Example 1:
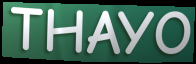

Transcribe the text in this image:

THAYO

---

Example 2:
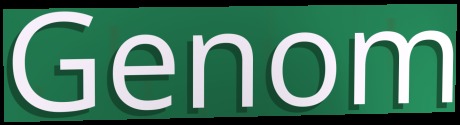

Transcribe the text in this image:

Genom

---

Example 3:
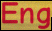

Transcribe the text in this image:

Eng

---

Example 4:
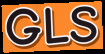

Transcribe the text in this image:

GLS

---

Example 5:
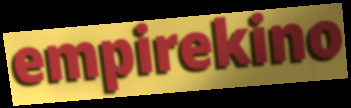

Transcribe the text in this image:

empirekino